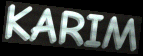
KARIM